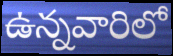
ఉన్నవారిలో